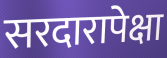
सरदारापेक्षा